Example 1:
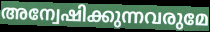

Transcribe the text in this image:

അന്വേഷിക്കുന്നവരുമേ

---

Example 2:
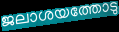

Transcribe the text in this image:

ജലാശയത്തോടു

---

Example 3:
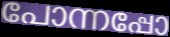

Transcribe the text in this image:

പോന്നപ്പോ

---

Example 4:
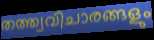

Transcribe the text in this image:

തത്ത്വവിചാരങ്ങളും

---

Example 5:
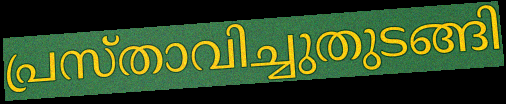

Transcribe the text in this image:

പ്രസ്താവിച്ചുതുടങ്ങി